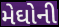
મેઘોની